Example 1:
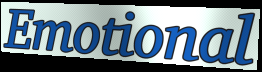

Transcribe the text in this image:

Emotional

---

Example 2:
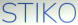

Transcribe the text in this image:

STIKO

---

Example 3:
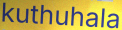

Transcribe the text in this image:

kuthuhala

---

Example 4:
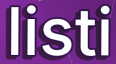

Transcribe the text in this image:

listi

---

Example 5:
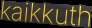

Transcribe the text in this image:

kaikkuth